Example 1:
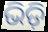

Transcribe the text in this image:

ଭିଡ଼ି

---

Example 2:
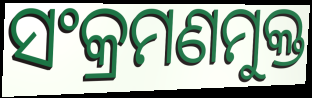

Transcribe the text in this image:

ସଂକ୍ରମଣମୁକ୍ତ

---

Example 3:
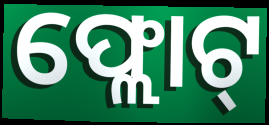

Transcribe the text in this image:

ଫ୍ଲୋଟ୍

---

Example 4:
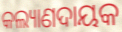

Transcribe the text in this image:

କଲ୍ୟାଣଦାୟକ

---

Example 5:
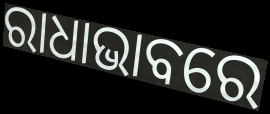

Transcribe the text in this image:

ରାଧାଭାବରେ